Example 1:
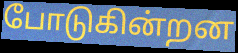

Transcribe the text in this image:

போடுகின்றன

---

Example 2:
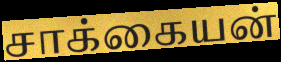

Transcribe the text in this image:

சாக்கையன்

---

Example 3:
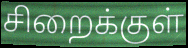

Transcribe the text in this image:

சிறைக்குள்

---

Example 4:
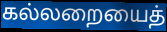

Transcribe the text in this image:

கல்லறையைத்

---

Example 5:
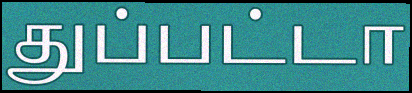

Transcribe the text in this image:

துப்பட்டா